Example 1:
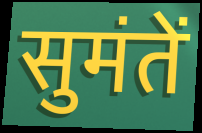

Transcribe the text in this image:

सुमंतें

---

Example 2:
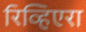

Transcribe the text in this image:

रिव्हिएरा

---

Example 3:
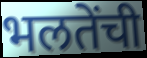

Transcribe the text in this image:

भलतेंची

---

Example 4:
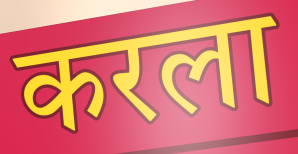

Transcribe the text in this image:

करला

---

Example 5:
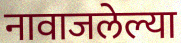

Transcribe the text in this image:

नावाजलेल्या